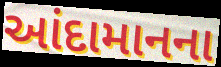
આંદામાનના